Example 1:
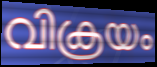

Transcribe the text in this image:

വിക്രയം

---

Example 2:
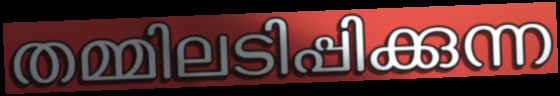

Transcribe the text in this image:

തമ്മിലടിപ്പിക്കുന്ന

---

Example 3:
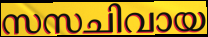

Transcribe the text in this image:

സസചിവായ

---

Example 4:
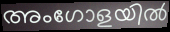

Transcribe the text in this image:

അംഗോളയിൽ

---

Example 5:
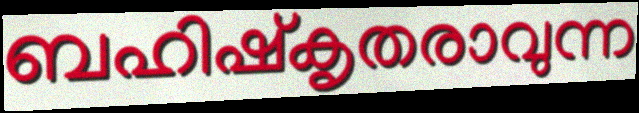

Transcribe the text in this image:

ബഹിഷ്കൃതരാവുന്ന